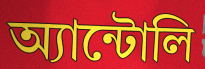
অ্যান্টোলি